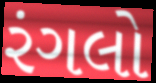
રંગલો